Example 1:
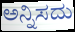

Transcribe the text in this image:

ಅನ್ನಿಸದು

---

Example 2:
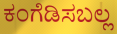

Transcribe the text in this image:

ಕಂಗೆಡಿಸಬಲ್ಲ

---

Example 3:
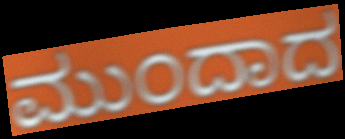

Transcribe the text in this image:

ಮುಂದಾದ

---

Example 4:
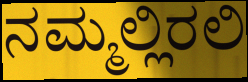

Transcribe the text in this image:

ನಮ್ಮಲ್ಲಿರಲಿ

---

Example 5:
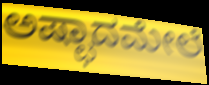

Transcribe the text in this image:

ಅಷ್ಟಾದಮೇಲೆ